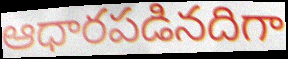
ఆధారపడినదిగా